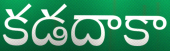
కడదాకా